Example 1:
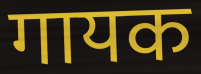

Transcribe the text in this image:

गायक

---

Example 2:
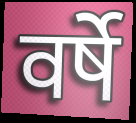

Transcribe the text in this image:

वर्षे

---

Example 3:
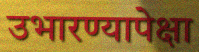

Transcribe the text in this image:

उभारण्यापेक्षा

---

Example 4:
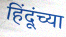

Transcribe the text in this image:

हिंदूंच्या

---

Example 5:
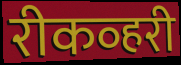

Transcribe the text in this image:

रीकव्हरी